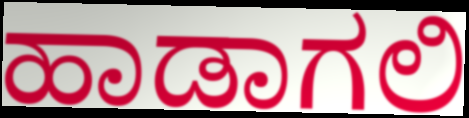
ಹಾಡಾಗಲಿ